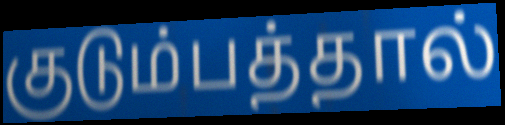
குடும்பத்தால்